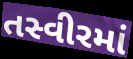
તસ્વીરમાં